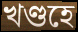
খণ্ডহে